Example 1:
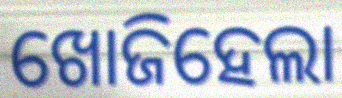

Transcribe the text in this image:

ଖୋଜିହେଲା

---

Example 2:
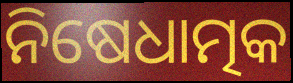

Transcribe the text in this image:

ନିଷେଧାତ୍ମକ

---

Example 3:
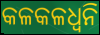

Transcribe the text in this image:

କଳକଳଧ୍ଵନି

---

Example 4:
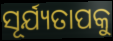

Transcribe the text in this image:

ସୂର୍ଯ୍ୟତାପକୁ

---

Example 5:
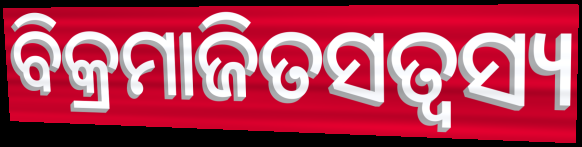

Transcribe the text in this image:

ବିକ୍ରମାଜିତସତ୍ଵସ୍ୟ